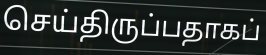
செய்திருப்பதாகப்